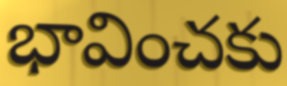
భావించకు